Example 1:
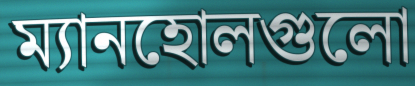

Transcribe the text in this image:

ম্যানহোলগুলো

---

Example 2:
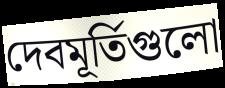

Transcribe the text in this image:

দেবমূর্তিগুলো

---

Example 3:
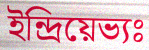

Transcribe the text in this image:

ইন্দ্রিয়েভ্যঃ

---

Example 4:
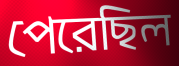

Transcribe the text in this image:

পেরেছিল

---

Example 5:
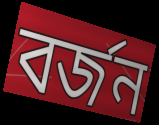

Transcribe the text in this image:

বর্জন